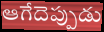
ఆగేదెప్పుడు